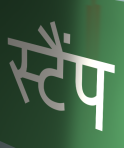
स्टैंप